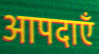
आपदाएँ